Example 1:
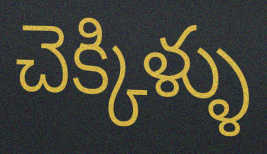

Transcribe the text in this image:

చెక్కిళ్ళు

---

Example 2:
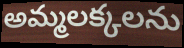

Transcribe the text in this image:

అమ్మలక్కలను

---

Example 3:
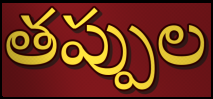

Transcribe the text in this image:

తప్పుల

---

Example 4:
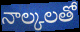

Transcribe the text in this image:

నాల్కలతో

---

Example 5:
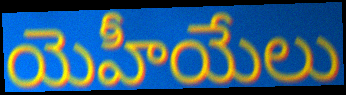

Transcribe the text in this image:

యెహీయేలు